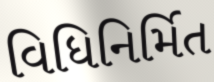
વિધિનિર્મિત